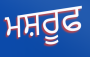
ਮਸ਼ਰੂਫ